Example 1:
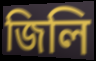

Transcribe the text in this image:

জিলি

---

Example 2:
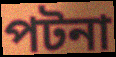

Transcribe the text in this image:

পটনা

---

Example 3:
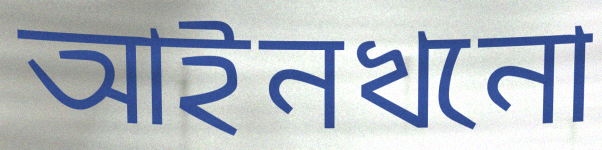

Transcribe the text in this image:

আইনখনো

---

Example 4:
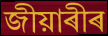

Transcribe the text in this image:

জীয়াৰীৰ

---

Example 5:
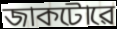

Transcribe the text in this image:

জাকটোৱে